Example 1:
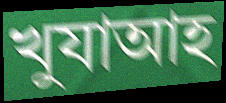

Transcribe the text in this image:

খুযাআহ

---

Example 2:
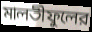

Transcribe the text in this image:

মালতীফুলের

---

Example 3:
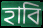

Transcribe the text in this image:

হাবি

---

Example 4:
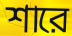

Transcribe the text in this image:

শারে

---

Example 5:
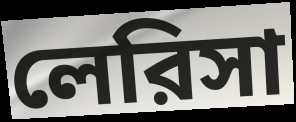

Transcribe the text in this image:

লেরিসা